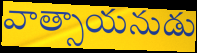
వాత్సాయనుడు